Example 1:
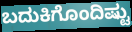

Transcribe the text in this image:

ಬದುಕಿಗೊಂದಿಷ್ಟು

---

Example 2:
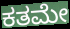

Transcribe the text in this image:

ಕತಮೇ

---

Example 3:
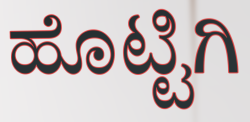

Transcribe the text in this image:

ಹೊಟ್ಟಿಗಿ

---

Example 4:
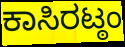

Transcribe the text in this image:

ಕಾಸಿರಟ್ಠಂ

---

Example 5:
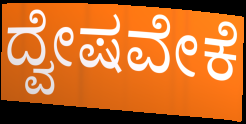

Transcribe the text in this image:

ದ್ವೇಷವೇಕೆ